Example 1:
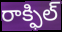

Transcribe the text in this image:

రాక్ఫిల్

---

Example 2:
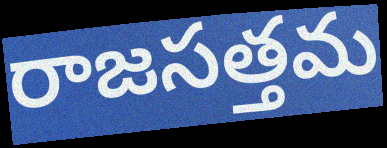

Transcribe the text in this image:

రాజసత్తమ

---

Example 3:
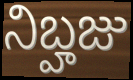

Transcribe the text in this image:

నిబ్హజు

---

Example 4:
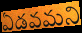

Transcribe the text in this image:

ఏడవమని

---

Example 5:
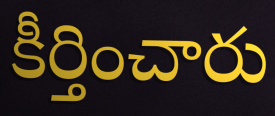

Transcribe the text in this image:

కీర్తించారు